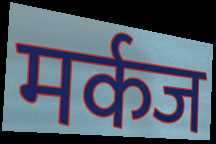
मर्कज